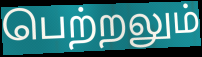
பெற்றலும்